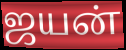
ஜயன்